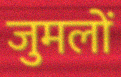
जुमलों